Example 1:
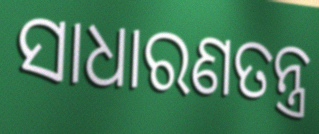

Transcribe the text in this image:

ସାଧାରଣତନ୍ତ୍ର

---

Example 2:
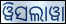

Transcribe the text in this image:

ୱିସଲାୱା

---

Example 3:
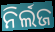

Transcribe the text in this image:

ନିର୍ଲଜ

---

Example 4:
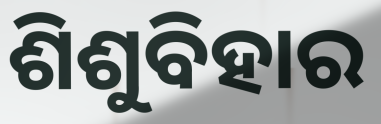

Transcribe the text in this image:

ଶିଶୁବିହାର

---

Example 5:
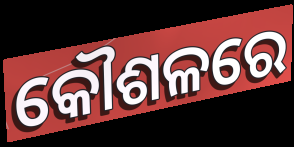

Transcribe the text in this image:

କୌଶଳରେ